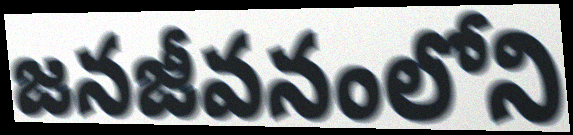
జనజీవనంలోని